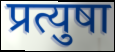
प्रत्युषा